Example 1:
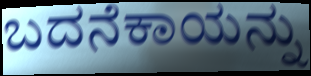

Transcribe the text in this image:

ಬದನೆಕಾಯನ್ನು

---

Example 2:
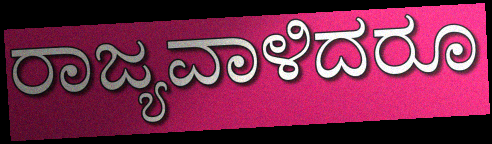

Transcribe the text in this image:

ರಾಜ್ಯವಾಳಿದರೂ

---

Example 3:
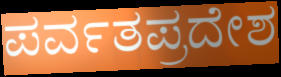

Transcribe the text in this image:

ಪರ್ವತಪ್ರದೇಶ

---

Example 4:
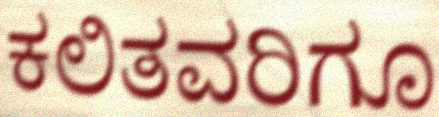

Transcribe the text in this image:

ಕಲಿತವರಿಗೂ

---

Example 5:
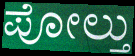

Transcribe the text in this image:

ಪೋಲ್ತು